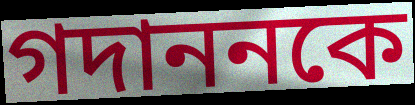
গদাননকে